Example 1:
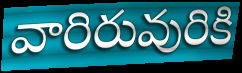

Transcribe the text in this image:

వారిరువురికి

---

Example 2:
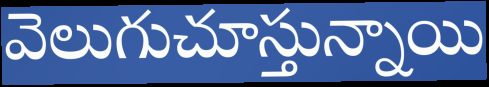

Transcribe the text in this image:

వెలుగుచూస్తున్నాయి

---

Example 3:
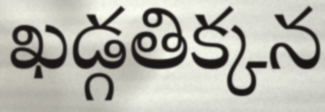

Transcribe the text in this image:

ఖడ్గతిక్కన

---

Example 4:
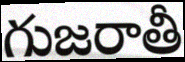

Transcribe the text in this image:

గుజరాతీ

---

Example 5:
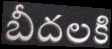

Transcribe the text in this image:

బీదలకి